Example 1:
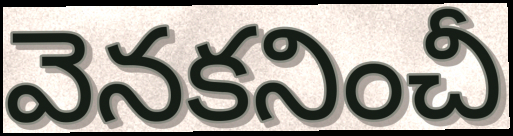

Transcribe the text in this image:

వెనకనించీ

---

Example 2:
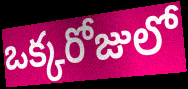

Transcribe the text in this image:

ఒక్కరోజులో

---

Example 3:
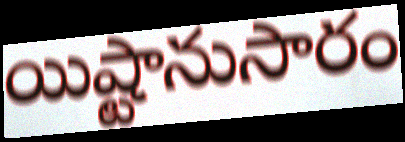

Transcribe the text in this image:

యిష్టానుసారం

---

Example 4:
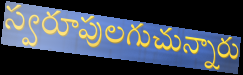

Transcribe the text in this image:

స్వరూపులగుచున్నారు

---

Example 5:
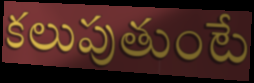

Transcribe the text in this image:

కలుపుతుంటే